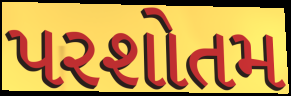
પરશોતમ